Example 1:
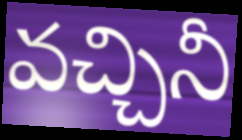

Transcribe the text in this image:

వచ్చినీ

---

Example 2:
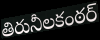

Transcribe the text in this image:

తిరునీలకంఠర్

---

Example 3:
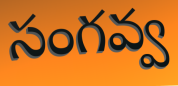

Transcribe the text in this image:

సంగవ్వ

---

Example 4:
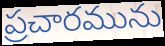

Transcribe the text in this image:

ప్రచారమును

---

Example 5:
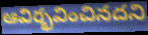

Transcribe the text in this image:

ఆవిర్భవించినదని